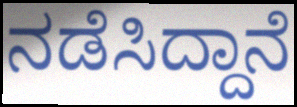
ನಡೆಸಿದ್ದಾನೆ